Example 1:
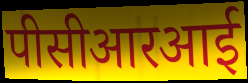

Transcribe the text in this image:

पीसीआरआई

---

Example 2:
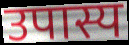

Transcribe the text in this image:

उपास्य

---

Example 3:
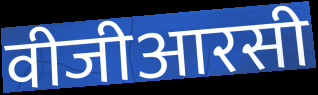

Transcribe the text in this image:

वीजीआरसी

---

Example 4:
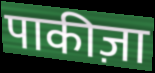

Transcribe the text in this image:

पाकीज़ा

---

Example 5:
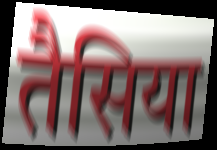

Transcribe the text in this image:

तैसिया